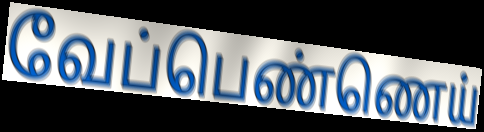
வேப்பெண்ணெய்